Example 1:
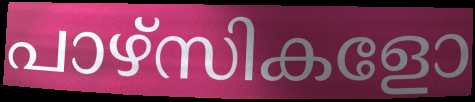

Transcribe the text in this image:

പാഴ്സികളോ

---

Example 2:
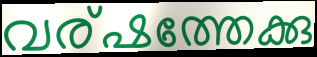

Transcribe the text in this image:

വര്ഷത്തേക്കു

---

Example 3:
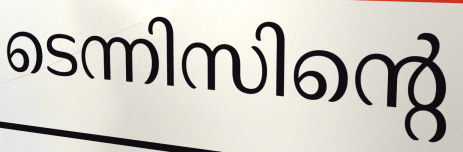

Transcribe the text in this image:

ടെന്നിസിന്റെ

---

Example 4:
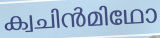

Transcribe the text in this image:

ക്വചിൻമിഥോ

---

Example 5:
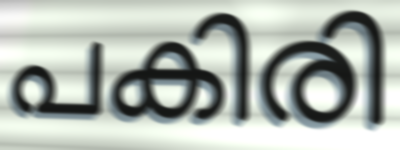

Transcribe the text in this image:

പകിരി